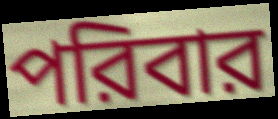
পরিবার